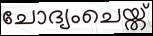
ചോദ്യംചെയ്ത്